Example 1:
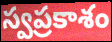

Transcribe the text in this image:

స్వప్రకాశం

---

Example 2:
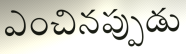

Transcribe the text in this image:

ఎంచినప్పుడు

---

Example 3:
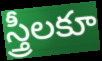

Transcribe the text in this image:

స్త్రీలకూ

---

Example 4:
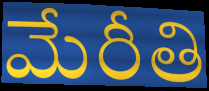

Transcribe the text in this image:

మేరీతి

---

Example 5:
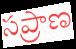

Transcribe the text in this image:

సప్రాణ